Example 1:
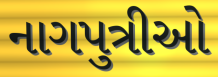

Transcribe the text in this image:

નાગપુત્રીઓ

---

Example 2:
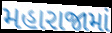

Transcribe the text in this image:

મહારાજામાં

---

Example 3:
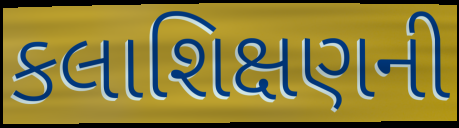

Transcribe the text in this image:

કલાશિક્ષણની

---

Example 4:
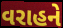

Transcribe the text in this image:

વરાહને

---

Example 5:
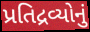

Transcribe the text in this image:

પ્રતિદ્રવ્યોનું